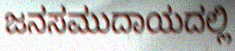
ಜನಸಮುದಾಯದಲ್ಲಿ